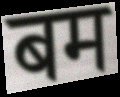
बम